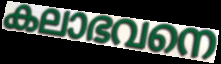
കലാഭവനെ